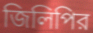
জিলিপির